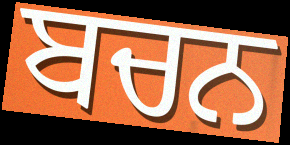
ਬਚਨ